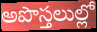
అపొస్తలుల్లో